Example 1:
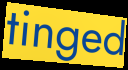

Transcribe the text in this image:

tinged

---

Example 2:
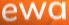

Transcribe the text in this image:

ewa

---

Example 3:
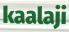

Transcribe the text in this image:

kaalaji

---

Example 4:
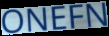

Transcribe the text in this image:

ONEFN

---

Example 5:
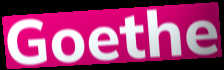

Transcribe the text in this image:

Goethe